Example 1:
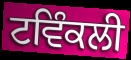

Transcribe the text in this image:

ਟਵਿੰਕਲੀ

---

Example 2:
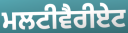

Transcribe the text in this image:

ਮਲਟੀਵੈਰੀਏਟ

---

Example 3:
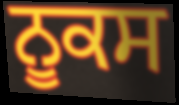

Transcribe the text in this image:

ਨੂਕਸ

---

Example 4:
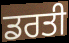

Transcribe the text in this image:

ਡਰਤੀ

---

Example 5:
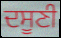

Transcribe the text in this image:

ਦਸੂਣੀ